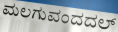
ಮಲಗುವಂದದಲ್